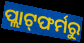
ପ୍ଲାଟ୍‌ଫର୍ମରୁ